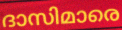
ദാസിമാരെ